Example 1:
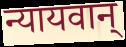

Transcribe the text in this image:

न्यायवान्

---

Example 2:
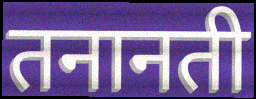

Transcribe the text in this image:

तनानती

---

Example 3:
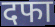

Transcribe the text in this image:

दफा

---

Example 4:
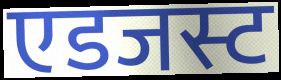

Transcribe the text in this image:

एडजस्ट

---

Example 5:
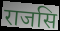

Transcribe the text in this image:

राजसि